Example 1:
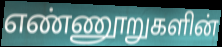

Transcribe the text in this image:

எண்ணூறுகளின்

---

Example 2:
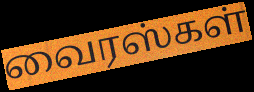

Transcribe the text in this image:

வைரஸ்கள்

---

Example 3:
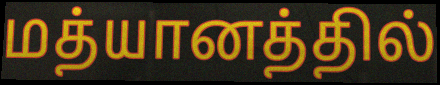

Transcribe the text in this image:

மத்யானத்தில்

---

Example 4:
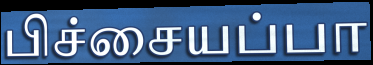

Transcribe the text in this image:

பிச்சையப்பா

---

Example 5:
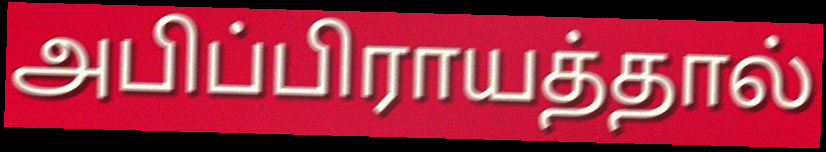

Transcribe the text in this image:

அபிப்பிராயத்தால்